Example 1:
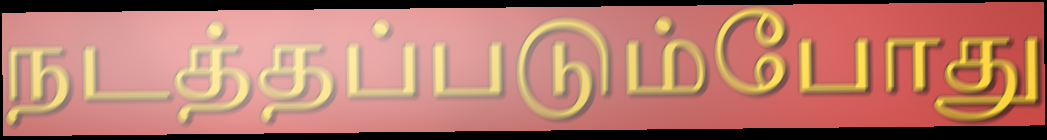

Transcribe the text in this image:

நடத்தப்படும்போது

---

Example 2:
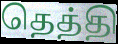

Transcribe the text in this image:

தெத்தி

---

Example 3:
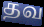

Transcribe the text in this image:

தவ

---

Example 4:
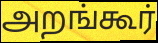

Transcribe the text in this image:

அறங்கூர்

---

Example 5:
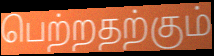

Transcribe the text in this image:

பெற்றதற்கும்